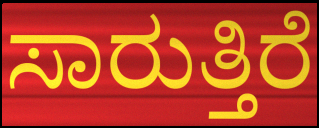
ಸಾರುತ್ತಿರೆ